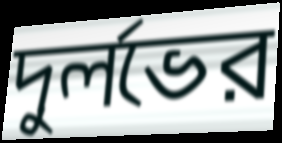
দুর্লভের